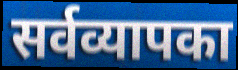
सर्वव्यापका